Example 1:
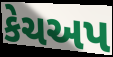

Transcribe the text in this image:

કેચઅપ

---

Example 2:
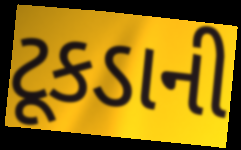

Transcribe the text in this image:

ટૂકડાની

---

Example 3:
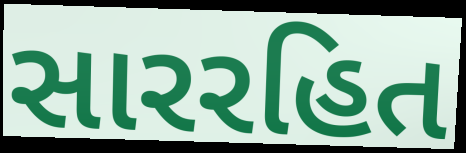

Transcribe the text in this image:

સારરહિત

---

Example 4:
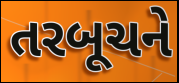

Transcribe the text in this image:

તરબૂચને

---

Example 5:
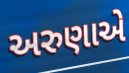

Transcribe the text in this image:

અરુણાએ